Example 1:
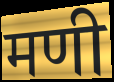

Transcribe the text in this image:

मणी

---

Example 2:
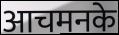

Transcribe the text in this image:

आचमनके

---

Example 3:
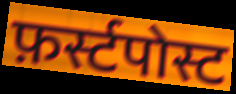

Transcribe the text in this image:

फ़र्स्टपोस्ट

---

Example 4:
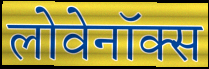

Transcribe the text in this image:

लोवेनॉक्स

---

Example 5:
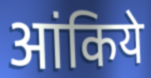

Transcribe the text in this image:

आंकिये